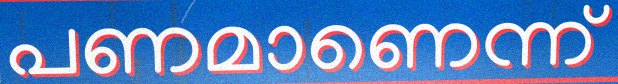
പണമാണെന്ന്